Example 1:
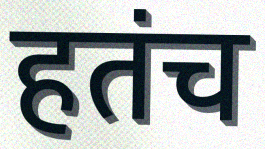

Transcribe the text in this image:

हतंच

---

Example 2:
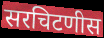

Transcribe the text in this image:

सरचिटणीस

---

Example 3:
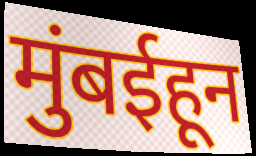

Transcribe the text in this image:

मुंबईहून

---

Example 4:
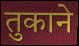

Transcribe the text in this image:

तुकाने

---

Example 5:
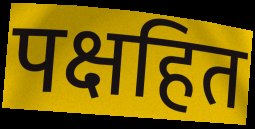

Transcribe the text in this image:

पक्षहित